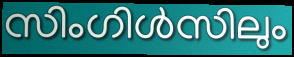
സിംഗിൾസിലും